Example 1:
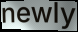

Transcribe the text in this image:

newly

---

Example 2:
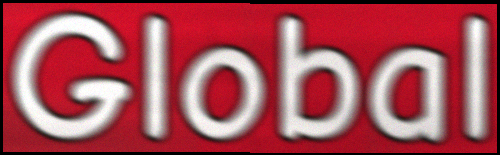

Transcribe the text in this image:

Global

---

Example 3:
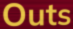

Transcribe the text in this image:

Outs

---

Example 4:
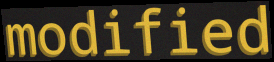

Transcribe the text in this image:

modified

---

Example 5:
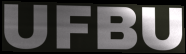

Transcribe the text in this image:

UFBU